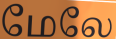
மேலே